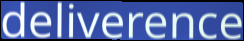
deliverence